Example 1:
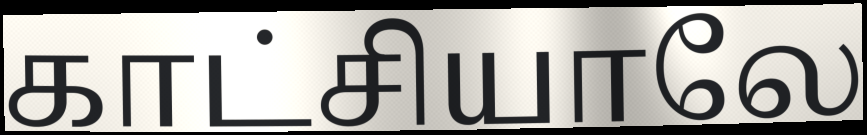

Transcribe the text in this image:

காட்சியாலே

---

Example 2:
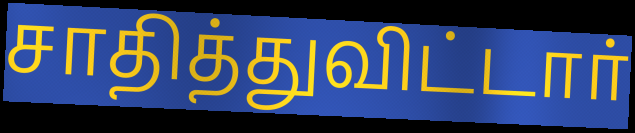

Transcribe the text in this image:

சாதித்துவிட்டார்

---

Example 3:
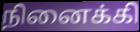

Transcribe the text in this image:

நினைக்கி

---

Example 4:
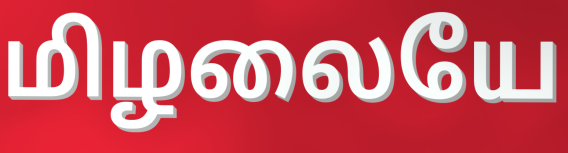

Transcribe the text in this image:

மிழலையே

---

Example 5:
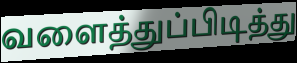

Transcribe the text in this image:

வளைத்துப்பிடித்து